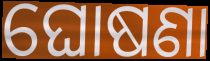
ଘୋଷଣା